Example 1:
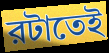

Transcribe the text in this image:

রটাতেই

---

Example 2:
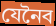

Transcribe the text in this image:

যেনৈব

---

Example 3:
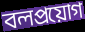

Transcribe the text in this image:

বলপ্রয়োগ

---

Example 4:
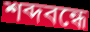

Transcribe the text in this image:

শব্দবন্ধে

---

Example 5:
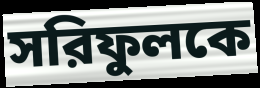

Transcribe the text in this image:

সরিফুলকে